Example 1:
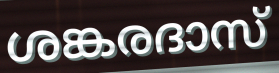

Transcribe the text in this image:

ശങ്കരദാസ്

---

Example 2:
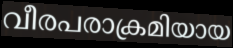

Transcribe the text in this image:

വീരപരാക്രമിയായ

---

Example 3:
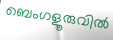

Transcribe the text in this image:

ബെംഗളൂരുവിൽ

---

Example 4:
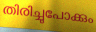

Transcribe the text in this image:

തിരിച്ചുപോക്കും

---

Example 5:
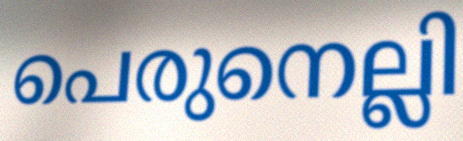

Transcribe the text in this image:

പെരുനെല്ലി